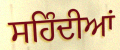
ਸਹਿੰਦੀਆਂ